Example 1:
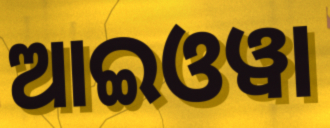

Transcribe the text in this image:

ଆଇଓୱା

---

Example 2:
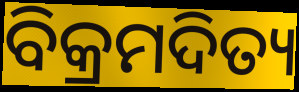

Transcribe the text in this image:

ବିକ୍ରମଦିତ୍ୟ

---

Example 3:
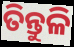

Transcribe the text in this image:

ତିନ୍ତୁଳି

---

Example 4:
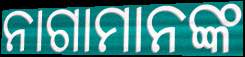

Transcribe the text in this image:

ନାଗାମାନଙ୍କ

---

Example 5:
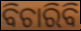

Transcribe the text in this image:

ବିଚାରିବି